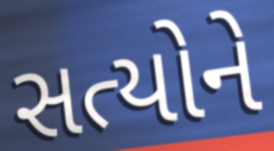
સત્યોને